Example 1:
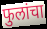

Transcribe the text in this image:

फुलांचा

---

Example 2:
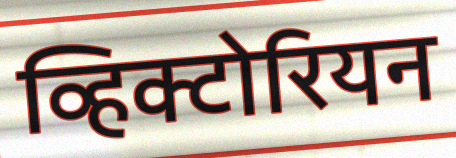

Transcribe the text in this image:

व्हिक्टोरियन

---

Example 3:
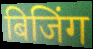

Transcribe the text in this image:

बिजिंग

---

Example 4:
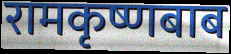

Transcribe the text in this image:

रामकृष्णबाब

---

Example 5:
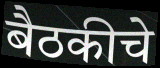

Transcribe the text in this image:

बैठकीचे